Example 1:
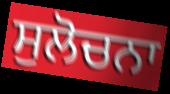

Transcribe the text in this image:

ਸੁਲੋਚਨਾ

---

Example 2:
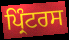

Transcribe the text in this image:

ਪ੍ਰਿੰਟਰਸ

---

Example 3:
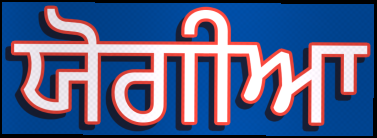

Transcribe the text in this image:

ਯੋਗੀਆ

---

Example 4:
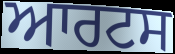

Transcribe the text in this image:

ਆਰਟਸ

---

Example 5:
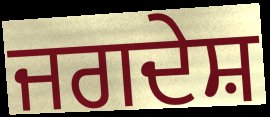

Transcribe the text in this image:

ਜਗਦੇਸ਼